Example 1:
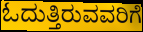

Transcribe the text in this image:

ಓದುತ್ತಿರುವವರಿಗೆ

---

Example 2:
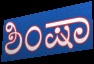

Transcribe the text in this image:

ಶಿಂಷಾ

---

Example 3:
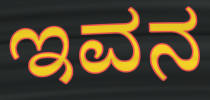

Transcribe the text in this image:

ಇವನ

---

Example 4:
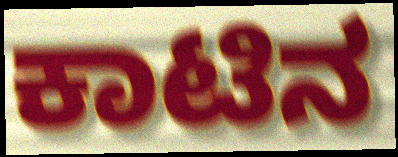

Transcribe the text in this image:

ಕಾಟಿನ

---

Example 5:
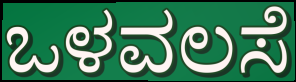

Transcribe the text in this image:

ಒಳವಲಸೆ